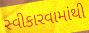
સ્વીકારવામાંથી